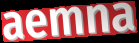
aemna